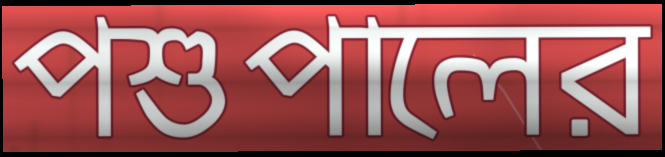
পশুপালের